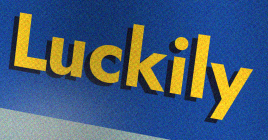
Luckily